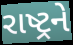
રાષ્ટ્રને